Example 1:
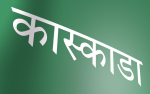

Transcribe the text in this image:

कास्काडा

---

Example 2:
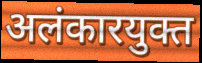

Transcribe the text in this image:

अलंकारयुक्त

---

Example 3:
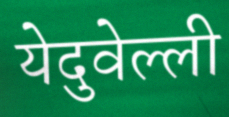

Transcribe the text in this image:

येदुवेल्ली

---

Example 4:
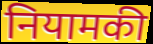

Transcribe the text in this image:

नियामकी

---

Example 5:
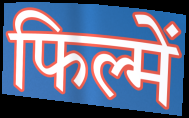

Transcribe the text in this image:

फिल्‍में